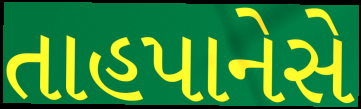
તાહપાનેસે